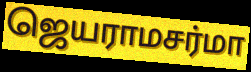
ஜெயராமசர்மா